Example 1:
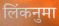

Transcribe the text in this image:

लिंकनुमा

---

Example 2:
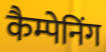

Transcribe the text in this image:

कैम्पेनिंग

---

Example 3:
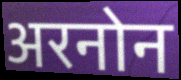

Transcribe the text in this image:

अरनोन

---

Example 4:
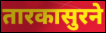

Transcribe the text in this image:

तारकासुरने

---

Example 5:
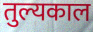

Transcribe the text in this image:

तुल्यकाल